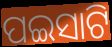
ପଇସାଟି